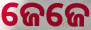
ଜେଜେ